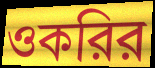
ওকরির